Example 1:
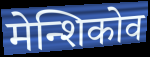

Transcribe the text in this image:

मेन्शिकोव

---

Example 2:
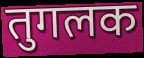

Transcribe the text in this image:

तुगलक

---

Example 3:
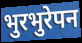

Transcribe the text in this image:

भुरभुरेपन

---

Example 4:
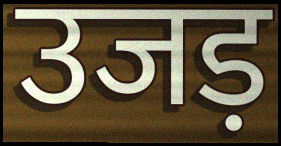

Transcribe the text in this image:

उजड़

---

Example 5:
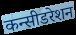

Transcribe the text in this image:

कन्सीडरेशन